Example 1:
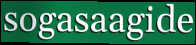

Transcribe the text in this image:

sogasaagide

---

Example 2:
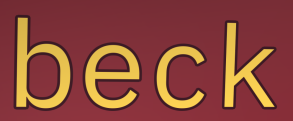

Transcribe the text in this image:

beck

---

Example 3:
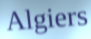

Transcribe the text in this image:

Algiers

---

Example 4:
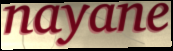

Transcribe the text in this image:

nayane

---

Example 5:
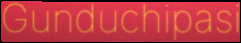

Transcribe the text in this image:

Gunduchipasi